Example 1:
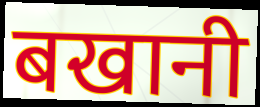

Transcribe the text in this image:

बखानी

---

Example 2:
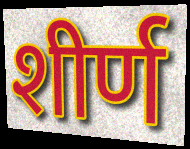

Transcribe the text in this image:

शीर्ण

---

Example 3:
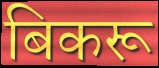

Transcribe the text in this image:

बिकरू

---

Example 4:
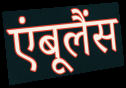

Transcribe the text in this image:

एंबूलैंस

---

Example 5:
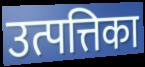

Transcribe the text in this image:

उत्पत्तिका